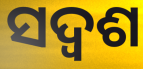
ସଦ୍ଵଶ